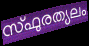
സ്ഫുരത്യലം